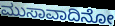
ಮುಸಾವಾದಿನೋ